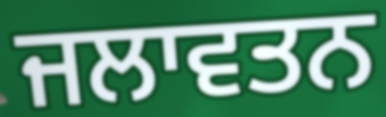
ਜਲਾਵਤਨ